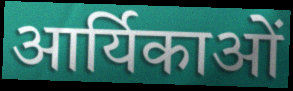
आर्यिकाओं